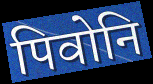
पिवोनि